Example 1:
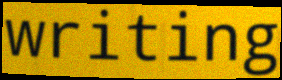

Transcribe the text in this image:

writing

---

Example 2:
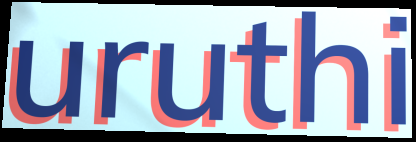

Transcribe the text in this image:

uruthi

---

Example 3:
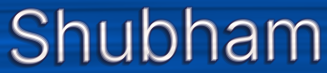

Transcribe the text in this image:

Shubham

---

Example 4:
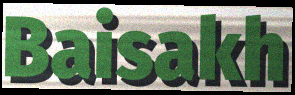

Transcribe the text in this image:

Baisakh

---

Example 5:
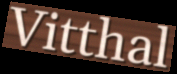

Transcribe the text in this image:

Vitthal